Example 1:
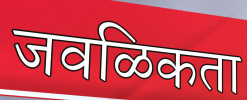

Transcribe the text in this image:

जवळिकता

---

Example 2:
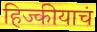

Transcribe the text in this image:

हिज्कीयाचं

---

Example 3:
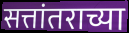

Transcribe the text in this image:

सत्तांतराच्या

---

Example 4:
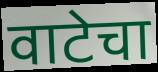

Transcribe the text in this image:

वाटेचा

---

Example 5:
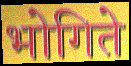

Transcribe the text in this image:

भोगिते